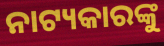
ନାଟ୍ୟକାରଙ୍କୁ